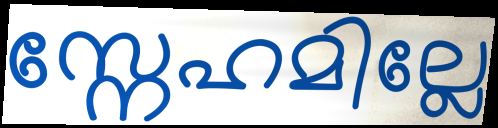
സ്നേഹമില്ലേ